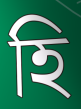
হি